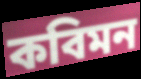
কবিমন